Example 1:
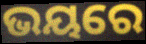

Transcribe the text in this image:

ଭୟରେ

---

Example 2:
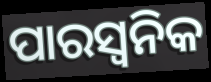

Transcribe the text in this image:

ପାରସ୍ୱନିକ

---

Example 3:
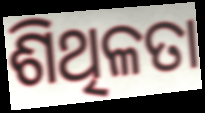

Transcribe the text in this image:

ଶିଥିଳତା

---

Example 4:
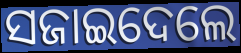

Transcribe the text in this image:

ସଜାଇଦେଲେ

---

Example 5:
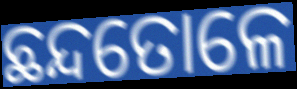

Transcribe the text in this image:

ଛନ୍ଦତୋଳେ